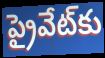
ప్రైవేట్‌కు